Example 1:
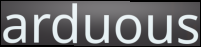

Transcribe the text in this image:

arduous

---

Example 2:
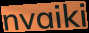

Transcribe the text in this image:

nvaiki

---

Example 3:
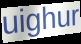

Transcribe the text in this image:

uighur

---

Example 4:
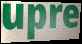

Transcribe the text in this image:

upre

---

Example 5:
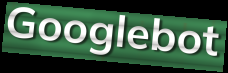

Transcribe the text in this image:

Googlebot